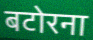
बटोरना